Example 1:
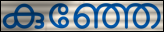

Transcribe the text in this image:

കുഞ്ഞേ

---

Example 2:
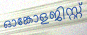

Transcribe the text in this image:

ഓങ്കോളജിസ്റ്റ്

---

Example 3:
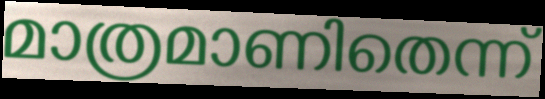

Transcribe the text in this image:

മാത്രമാണിതെന്ന്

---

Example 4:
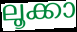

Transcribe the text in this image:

ലൂക്കാ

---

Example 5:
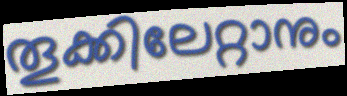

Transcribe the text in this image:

തൂക്കിലേറ്റാനും